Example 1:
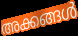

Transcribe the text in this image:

അക്കങ്ങൾ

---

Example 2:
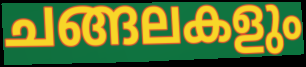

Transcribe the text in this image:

ചങ്ങലകളും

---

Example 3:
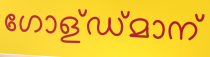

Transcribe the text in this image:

ഗോള്ഡ്മാന്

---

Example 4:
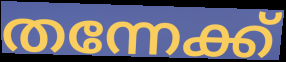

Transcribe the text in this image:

തന്നേക്ക്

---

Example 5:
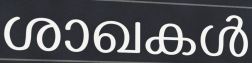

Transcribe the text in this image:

ശാഖകൾ